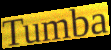
Tumba